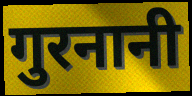
गुरनानी